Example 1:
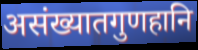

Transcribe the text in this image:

असंख्यातगुणहानि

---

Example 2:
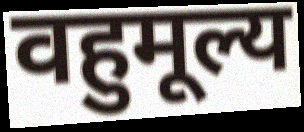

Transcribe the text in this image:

वहुमूल्य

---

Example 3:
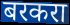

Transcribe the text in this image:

बरकरा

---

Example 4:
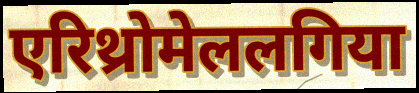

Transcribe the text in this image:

एरिथ्रोमेललगिया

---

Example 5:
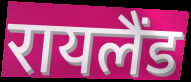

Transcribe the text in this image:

रायलैंड